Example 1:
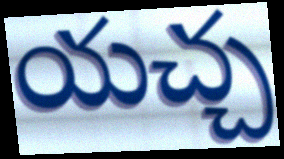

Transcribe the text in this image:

యచ్చ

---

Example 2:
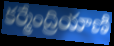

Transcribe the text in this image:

కర్మేంద్రియాణి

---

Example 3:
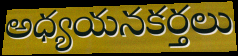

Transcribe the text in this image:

అధ్యయనకర్తలు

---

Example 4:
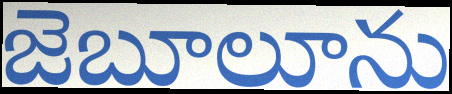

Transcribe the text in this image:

జెబూలూను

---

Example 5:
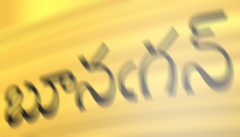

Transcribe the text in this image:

బూనఁగన్